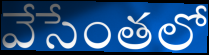
వేసేంతలో